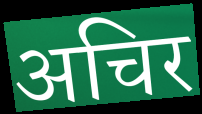
अचिर